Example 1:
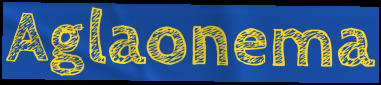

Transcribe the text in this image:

Aglaonema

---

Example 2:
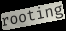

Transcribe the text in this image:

rooting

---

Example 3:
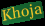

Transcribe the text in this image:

Khoja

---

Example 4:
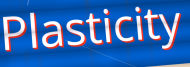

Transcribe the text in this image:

Plasticity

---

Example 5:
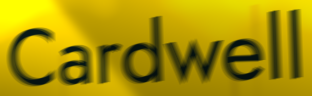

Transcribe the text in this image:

Cardwell